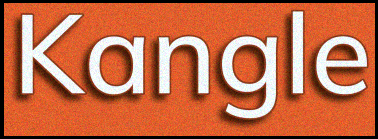
Kangle